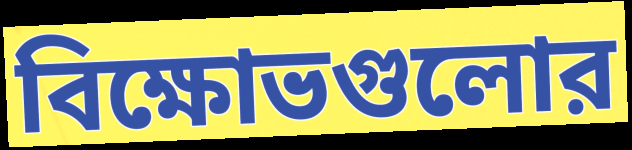
বিক্ষোভগুলোর